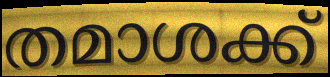
തമാശക്ക്